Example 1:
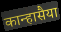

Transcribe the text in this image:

कान्हासैया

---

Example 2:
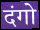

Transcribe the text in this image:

दंगो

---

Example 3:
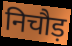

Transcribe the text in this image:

निचौड़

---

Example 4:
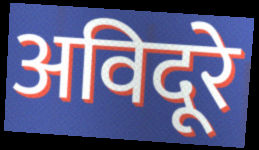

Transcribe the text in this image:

अविदूरे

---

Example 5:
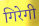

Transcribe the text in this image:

गिरेगी